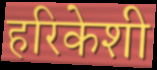
हरिकेशी